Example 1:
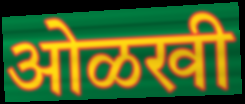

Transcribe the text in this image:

ओळखी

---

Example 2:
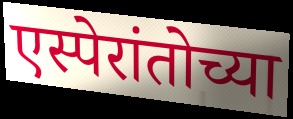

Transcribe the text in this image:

एस्पेरांतोच्या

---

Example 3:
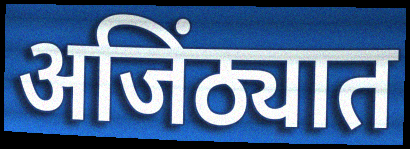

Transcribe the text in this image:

अजिंठ्यात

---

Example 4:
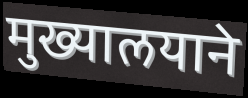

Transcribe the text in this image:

मुख्यालयाने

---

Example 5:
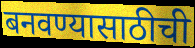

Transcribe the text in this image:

बनवण्यासाठीची